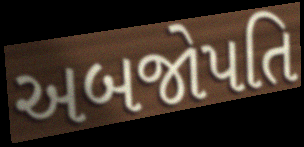
અબજોપતિ